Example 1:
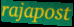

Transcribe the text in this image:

rajapost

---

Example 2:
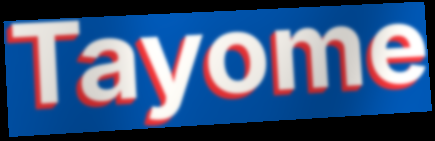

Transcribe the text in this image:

Tayome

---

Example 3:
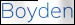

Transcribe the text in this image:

Boyden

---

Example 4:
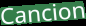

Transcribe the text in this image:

Cancion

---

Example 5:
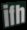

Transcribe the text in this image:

ifh